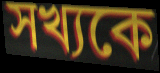
সখ্যকে